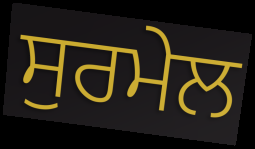
ਸੁਰਮੇਲ